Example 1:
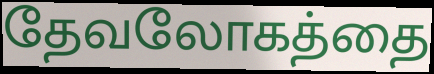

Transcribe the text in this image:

தேவலோகத்தை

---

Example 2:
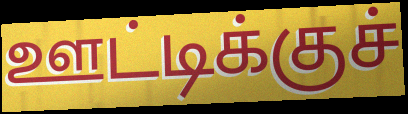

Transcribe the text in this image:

ஊட்டிக்குச்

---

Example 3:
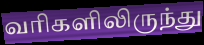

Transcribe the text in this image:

வரிகளிலிருந்து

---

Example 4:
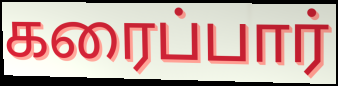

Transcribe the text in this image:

கரைப்பார்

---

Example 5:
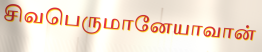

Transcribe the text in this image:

சிவபெருமானேயாவான்